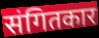
संगितकार